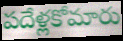
పదేళ్లకోమారు